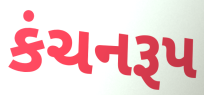
કંચનરૂપ